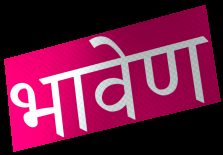
भावेण